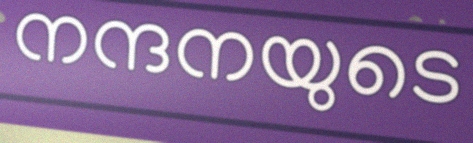
നന്ദനയുടെ